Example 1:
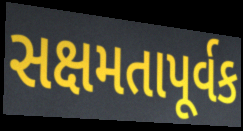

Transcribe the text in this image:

સક્ષમતાપૂર્વક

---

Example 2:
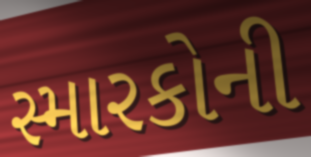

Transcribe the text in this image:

સ્મારકોની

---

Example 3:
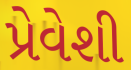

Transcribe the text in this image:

પ્રેવેશી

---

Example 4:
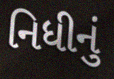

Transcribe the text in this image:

નિધીનું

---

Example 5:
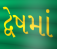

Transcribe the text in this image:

દ્વેષમાં